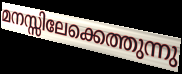
മനസ്സിലേക്കെത്തുന്നു